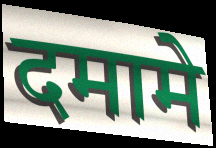
दमामे